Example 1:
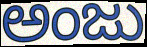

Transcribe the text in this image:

ಅಂಜು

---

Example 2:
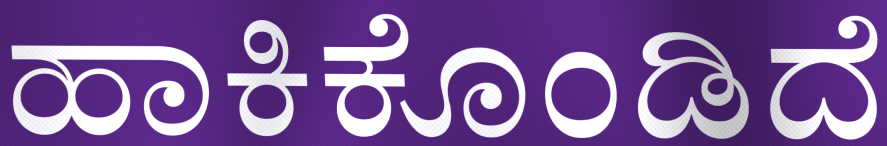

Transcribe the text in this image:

ಹಾಕಿಕೊಂಡಿದೆ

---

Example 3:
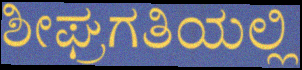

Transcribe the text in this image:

ಶೀಘ್ರಗತಿಯಲ್ಲಿ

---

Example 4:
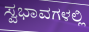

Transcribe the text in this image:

ಸ್ವಭಾವಗಳಲ್ಲಿ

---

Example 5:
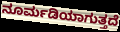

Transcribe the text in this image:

ನೂರ್ಮಡಿಯಾಗುತ್ತದೆ